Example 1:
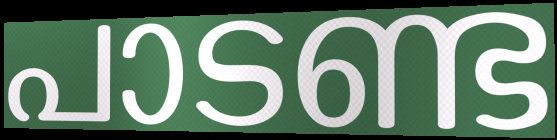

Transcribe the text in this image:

പാടണ്ട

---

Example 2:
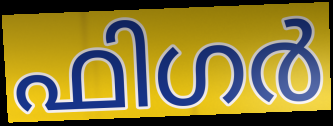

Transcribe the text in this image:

ഫിഗർ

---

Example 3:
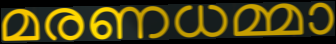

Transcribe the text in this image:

മരണധമ്മാ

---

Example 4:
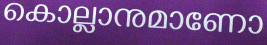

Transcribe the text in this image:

കൊല്ലാനുമാണോ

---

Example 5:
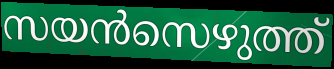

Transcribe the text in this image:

സയൻസെഴുത്ത്